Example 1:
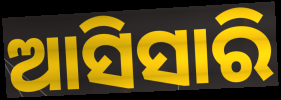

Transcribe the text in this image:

ଆସିସାରି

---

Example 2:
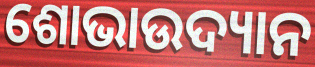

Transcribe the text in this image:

ଶୋଭାଉଦ୍ୟାନ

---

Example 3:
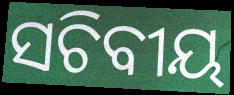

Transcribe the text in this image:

ସଚିବୀୟ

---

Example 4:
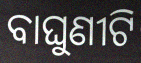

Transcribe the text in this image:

ବାଘୁଣୀଟି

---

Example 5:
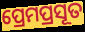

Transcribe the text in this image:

ପ୍ରେମପ୍ରସୂତ